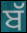
ਬੱ